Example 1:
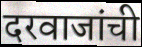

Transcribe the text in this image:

दरवाजांची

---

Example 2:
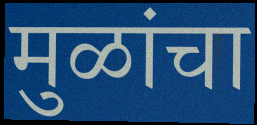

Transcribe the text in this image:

मुळांचा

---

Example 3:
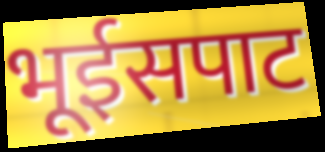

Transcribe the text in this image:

भूईसपाट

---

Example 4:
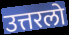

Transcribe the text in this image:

उत्तरलो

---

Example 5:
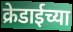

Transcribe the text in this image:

क्रेडाईच्या